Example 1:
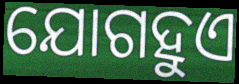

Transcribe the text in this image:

ଯୋଗହୁଏ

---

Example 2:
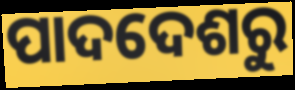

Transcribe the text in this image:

ପାଦଦେଶରୁ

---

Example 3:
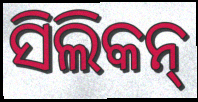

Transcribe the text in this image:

ସିଲିକନ୍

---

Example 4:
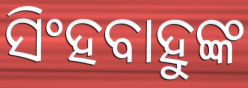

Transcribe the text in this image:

ସିଂହବାହୁଙ୍କ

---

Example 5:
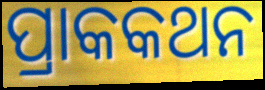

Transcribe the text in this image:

ପ୍ରାକକଥନ